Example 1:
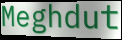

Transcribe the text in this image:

Meghdut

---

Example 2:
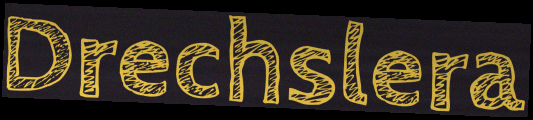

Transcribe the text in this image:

Drechslera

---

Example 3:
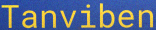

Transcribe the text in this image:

Tanviben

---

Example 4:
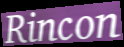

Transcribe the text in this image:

Rincon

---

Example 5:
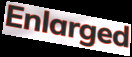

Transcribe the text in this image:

Enlarged